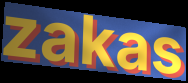
zakas